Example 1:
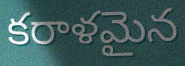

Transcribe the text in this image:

కరాళమైన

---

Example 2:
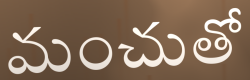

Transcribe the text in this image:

మంచుతో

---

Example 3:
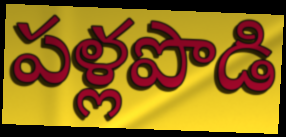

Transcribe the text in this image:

పళ్లపొడి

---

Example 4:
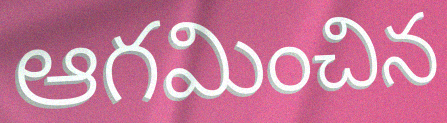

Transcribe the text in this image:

ఆగమించిన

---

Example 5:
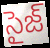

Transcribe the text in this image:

సైజ్